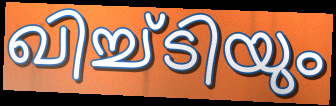
ഖിച്ച്ടിയും